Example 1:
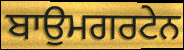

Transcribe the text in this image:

ਬਾਉਮਗਰਟੇਨ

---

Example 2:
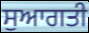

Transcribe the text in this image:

ਸੁਆਗਤੀ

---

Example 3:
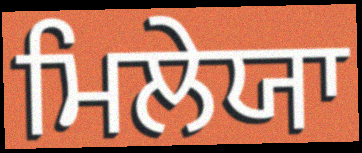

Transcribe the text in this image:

ਮਿਲੇਯਾ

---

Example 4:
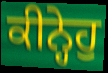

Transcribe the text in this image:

ਕੀਨ੍ਹੇਹੁ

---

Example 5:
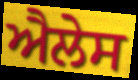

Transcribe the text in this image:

ਐਲੇਸ